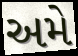
અમે